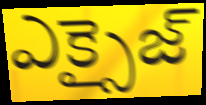
ఎక్సైజ్